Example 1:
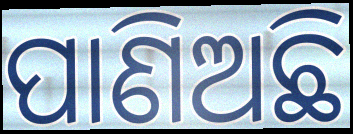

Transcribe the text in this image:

ପାଣିଅଛି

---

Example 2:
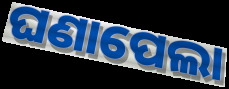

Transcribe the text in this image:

ଘଣାପେଲା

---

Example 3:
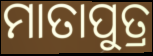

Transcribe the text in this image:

ମାତାପୁତ୍ର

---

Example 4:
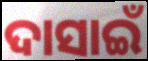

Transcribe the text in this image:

ଦାସାଇଁ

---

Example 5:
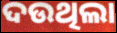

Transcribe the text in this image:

ଦଉଥିଲା